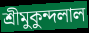
শ্রীমুকুন্দলাল